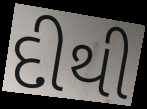
દીથી